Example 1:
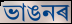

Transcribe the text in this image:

ভাঙনৰ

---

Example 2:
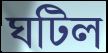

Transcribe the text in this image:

ঘটিল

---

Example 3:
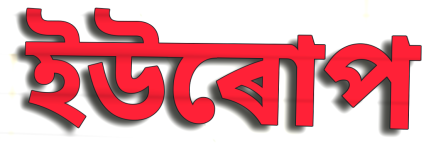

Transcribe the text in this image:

ইউৰোপ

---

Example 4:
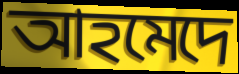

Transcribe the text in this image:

আহমেদে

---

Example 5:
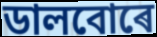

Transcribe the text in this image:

ডালবোৰে